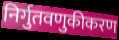
निर्गुतवणुकीकरण